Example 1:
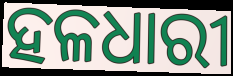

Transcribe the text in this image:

ହଳଧାରୀ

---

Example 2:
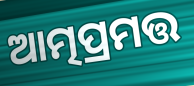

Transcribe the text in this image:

ଆତ୍ମପ୍ରମତ୍ତ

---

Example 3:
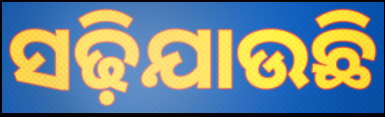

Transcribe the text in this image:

ସଢ଼ିଯାଉଛି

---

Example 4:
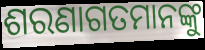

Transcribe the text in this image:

ଶରଣାଗତମାନଙ୍କୁ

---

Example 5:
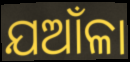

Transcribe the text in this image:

ଯଆଁଳା